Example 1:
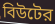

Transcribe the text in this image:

বিউটের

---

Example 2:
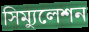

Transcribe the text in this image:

সিম্যুলেশন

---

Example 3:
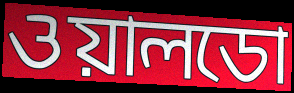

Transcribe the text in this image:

ওয়ালডো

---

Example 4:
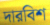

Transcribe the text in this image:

দারবিশ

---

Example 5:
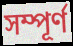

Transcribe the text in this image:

সম্পূর্ণ